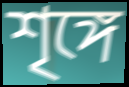
শৃঙ্গে